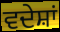
ਵਦੇਸ਼ਾਂ